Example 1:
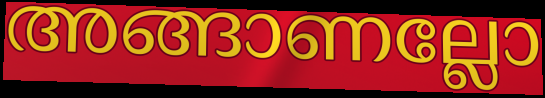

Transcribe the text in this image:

അങ്ങാണല്ലോ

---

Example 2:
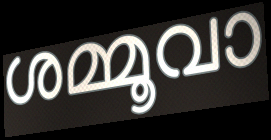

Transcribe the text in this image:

ശമ്മൂവാ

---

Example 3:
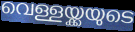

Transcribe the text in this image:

വെള്ളയ്ക്കയുടെ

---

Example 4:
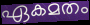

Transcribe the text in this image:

ഏകമതം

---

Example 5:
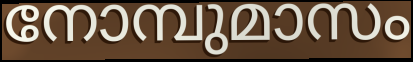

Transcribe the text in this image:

നോമ്പുമാസം